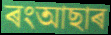
ৰংআছাৰ